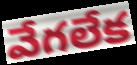
వేగలేక